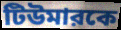
টিউমারকে